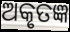
ଅକୃତଜ୍ଞ